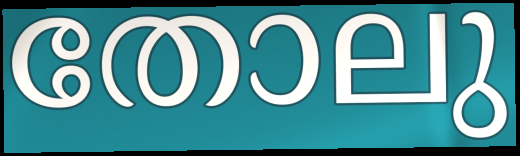
തോലു